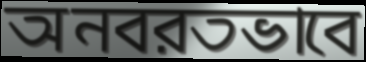
অনবরতভাবে